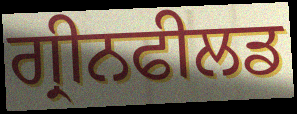
ਗ੍ਰੀਨਫੀਲਡ